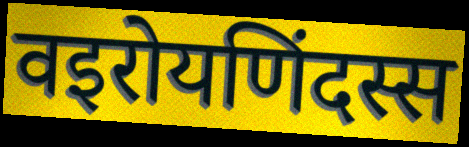
वइरोयणिंदस्स